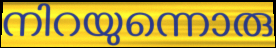
നിറയുന്നൊരു